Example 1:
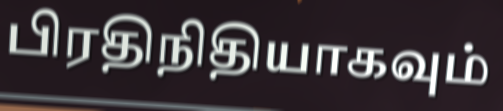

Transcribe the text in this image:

பிரதிநிதியாகவும்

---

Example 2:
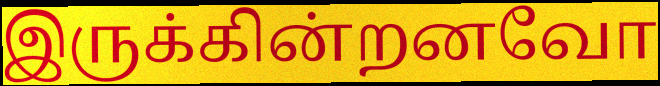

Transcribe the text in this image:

இருக்கின்றனவோ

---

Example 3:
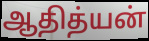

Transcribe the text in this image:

ஆதித்யன்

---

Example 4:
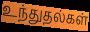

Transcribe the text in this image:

உந்துதல்கள்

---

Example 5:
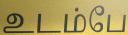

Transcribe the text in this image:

உடம்பே